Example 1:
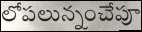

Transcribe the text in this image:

లోపలున్నంచేపూ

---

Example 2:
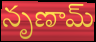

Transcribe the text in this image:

నృణామ్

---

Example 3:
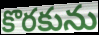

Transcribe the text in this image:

కొరకును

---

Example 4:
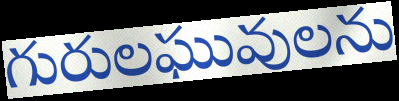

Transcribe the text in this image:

గురులఘువులను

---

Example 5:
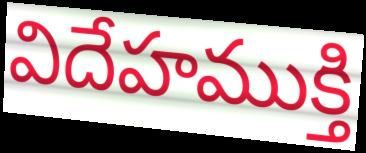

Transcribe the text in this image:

విదేహముక్తి